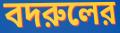
বদরুলের